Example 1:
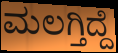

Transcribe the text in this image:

ಮಲಗ್ತಿದ್ದೆ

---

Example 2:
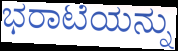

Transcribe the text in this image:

ಭರಾಟೆಯನ್ನು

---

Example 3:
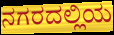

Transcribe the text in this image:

ನಗರದಲ್ಲಿಯ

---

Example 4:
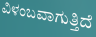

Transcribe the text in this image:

ವಿಳಂಬವಾಗುತ್ತಿದೆ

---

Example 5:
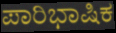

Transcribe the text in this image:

ಪಾರಿಭಾಷಿಕ